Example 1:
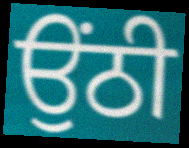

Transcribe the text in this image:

ਉਂਠੀ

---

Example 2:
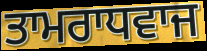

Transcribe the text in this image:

ਤਾਮਰਾਧਵਾਜ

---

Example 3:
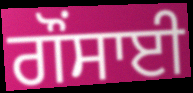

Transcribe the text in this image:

ਗੌਂਸਾਈ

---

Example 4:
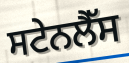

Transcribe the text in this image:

ਸਟੇਨਲੈੱਸ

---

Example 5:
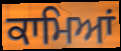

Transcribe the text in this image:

ਕਾਮਿਆਂ